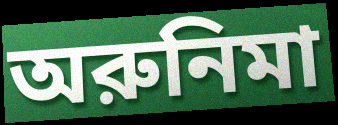
অরুনিমা